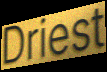
Driest